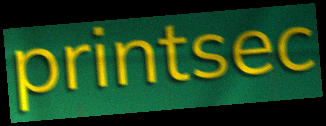
printsec